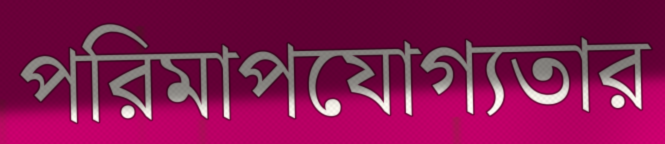
পরিমাপযোগ্যতার